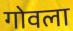
गोवला